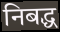
निबद्ध